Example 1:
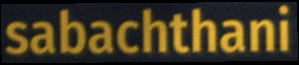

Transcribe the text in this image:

sabachthani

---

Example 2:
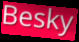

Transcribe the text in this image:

Besky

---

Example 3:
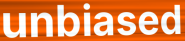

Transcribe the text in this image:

unbiased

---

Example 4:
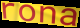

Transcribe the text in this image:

rona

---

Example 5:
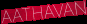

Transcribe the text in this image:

AATHAVAN